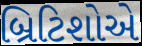
બ્રિટિશોએ